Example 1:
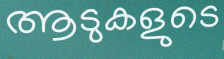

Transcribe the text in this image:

ആടുകളുടെ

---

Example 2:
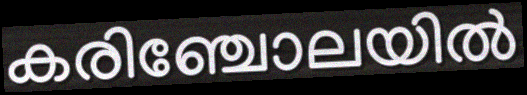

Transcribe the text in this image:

കരിഞ്ചോലയിൽ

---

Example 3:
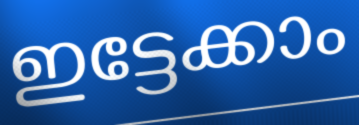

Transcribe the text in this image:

ഇട്ടേക്കാം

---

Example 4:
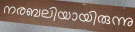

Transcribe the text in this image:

നരബലിയായിരുന്നു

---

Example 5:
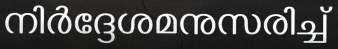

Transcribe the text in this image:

നിർദ്ദേശമനുസരിച്ച്